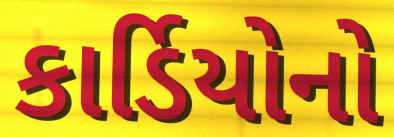
કાર્ડિયોનો